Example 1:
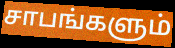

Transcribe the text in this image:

சாபங்களும்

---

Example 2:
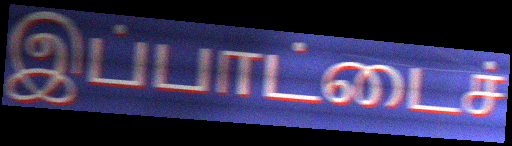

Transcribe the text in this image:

இப்பாட்டைச்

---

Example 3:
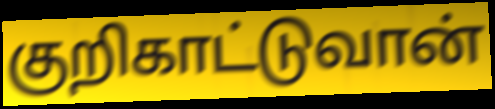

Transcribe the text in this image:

குறிகாட்டுவான்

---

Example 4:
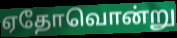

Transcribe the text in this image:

ஏதோவொன்று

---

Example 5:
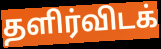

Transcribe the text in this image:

தளிர்விடக்